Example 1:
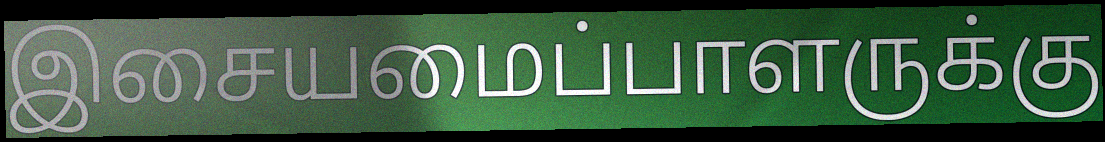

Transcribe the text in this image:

இசையமைப்பாளருக்கு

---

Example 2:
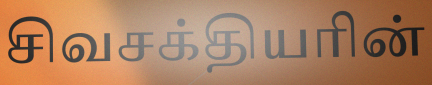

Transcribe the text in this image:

சிவசக்தியரின்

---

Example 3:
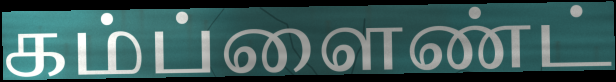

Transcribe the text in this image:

கம்ப்ளைண்ட்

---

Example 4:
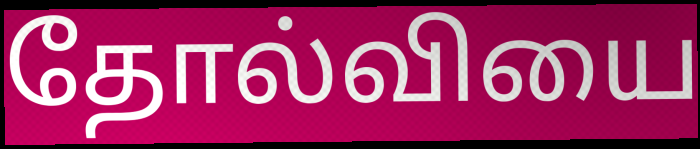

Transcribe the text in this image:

தோல்வியை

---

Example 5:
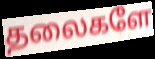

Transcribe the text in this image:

தலைகளே